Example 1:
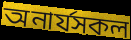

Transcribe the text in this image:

অনাৰ্যসকল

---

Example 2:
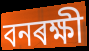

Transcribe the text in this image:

বনৰক্ষী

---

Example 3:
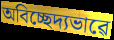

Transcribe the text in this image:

অবিচ্ছেদ্যভাৱে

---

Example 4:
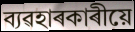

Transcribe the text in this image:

ব্যৱহাৰকাৰীয়ে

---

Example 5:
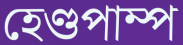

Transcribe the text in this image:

হেণ্ডপাম্প